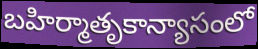
బహిర్మాతృకాన్యాసంలో